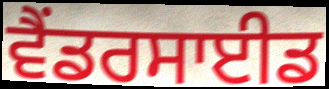
ਵੈਂਡਰਸਾਈਡ